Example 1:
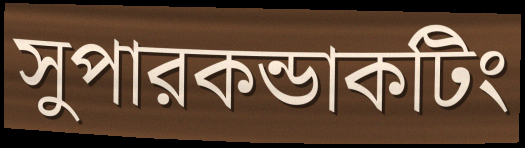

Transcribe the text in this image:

সুপারকন্ডাকটিং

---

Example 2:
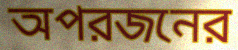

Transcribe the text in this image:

অপরজনের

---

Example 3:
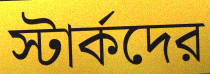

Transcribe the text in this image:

স্টার্কদের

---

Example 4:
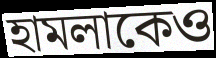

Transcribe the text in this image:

হামলাকেও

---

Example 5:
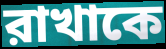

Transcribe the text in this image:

রাখাকে